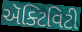
ઍક્ટિવિટી